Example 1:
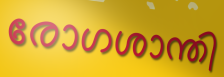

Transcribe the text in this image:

രോഗശാന്തി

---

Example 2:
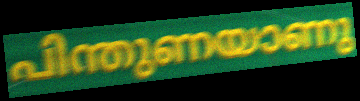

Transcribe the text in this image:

പിന്തുണയാണു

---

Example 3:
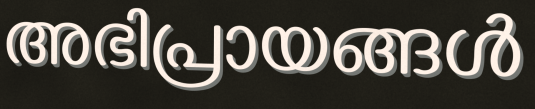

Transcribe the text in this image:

അഭിപ്രായങ്ങൾ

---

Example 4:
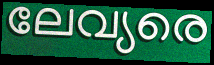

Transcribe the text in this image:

ലേവ്യരെ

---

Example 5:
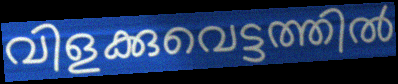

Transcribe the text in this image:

വിളക്കുവെട്ടത്തിൽ